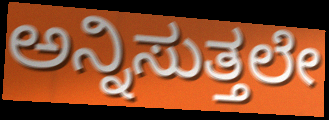
ಅನ್ನಿಸುತ್ತಲೇ